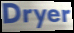
Dryer